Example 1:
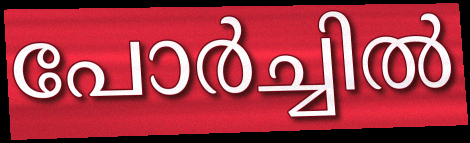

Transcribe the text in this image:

പോർച്ചിൽ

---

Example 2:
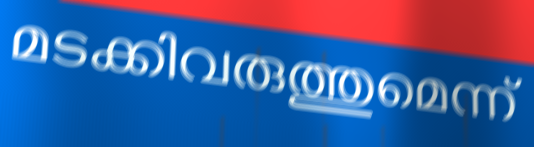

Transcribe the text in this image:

മടക്കിവരുത്തുമെന്ന്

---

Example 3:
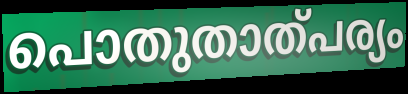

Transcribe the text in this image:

പൊതുതാത്പര്യം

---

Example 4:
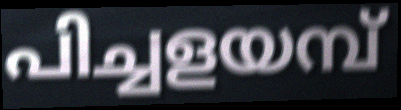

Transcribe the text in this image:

പിച്ചളയമ്പ്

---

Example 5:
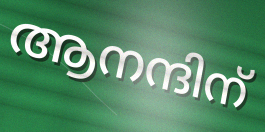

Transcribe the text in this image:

ആനന്ദിന്